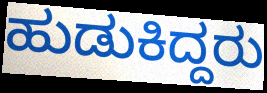
ಹುಡುಕಿದ್ದರು